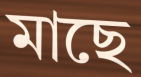
মাছে